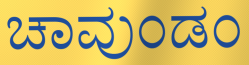
ಚಾವುಂಡಂ